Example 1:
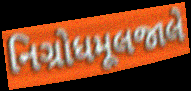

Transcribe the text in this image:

નિગ્રોધમૂલજાલે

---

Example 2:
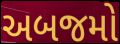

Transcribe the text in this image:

અબજમો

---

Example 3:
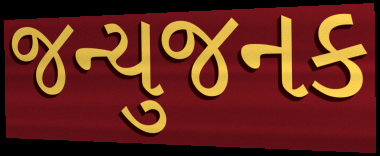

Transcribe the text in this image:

જન્યુજનક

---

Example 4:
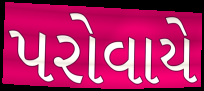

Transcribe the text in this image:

પરોવાયે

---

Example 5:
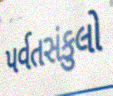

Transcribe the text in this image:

પર્વતસંકુલો